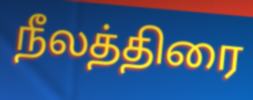
நீலத்திரை